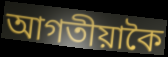
আগতীয়াকৈ